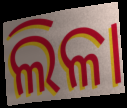
ଲିଳା